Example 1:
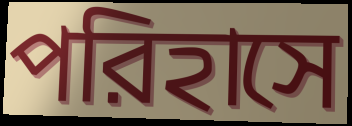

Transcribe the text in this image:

পরিহাসে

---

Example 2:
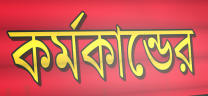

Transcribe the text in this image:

কর্মকান্ডের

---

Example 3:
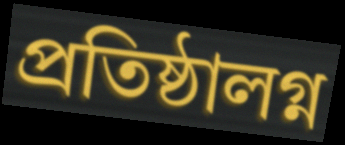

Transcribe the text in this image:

প্রতিষ্ঠালগ্ন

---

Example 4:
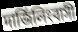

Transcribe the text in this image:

দার্জিলিংবাসী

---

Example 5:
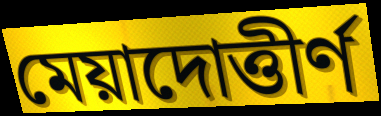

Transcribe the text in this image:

মেয়াদোত্তীর্ণ